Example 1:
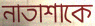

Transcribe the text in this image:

নাতাশাকে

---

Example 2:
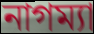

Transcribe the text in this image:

নাগম্যা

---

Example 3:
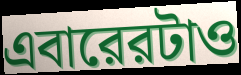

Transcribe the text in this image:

এবারেরটাও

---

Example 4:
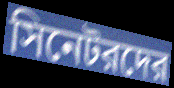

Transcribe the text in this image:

সিনেটরদের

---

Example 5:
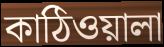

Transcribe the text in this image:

কাঠিওয়ালা